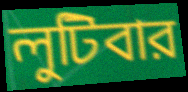
লুটিবার